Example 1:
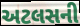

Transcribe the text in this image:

અટલસની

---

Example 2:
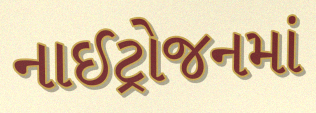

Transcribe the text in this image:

નાઈટ્રોજનમાં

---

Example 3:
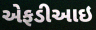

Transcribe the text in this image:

એફડીઆઇ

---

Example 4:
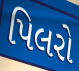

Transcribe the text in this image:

પિલરો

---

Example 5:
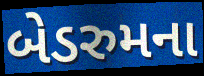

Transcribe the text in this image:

બેડરુમના